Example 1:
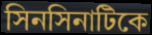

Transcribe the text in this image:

সিনসিনাটিকে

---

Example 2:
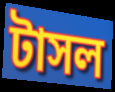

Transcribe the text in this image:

টাসল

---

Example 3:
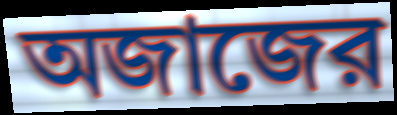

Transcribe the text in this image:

অজাজের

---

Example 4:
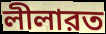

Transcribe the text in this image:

লীলারত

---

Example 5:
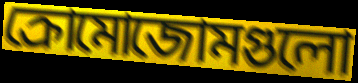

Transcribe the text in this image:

ক্রোমোজোমগুলো